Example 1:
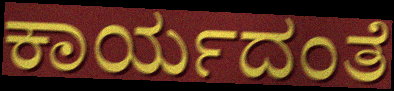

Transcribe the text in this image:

ಕಾರ್ಯದಂತೆ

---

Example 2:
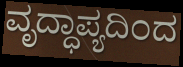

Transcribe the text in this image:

ವೃದ್ಧಾಪ್ಯದಿಂದ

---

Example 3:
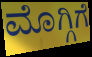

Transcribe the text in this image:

ಮೊಗ್ಗಿಗೆ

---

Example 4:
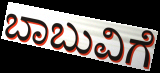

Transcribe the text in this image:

ಬಾಬುವಿಗೆ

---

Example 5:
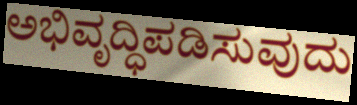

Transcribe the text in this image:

ಅಭಿವೃದ್ಧಿಪಡಿಸುವುದು